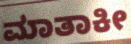
ಮಾತಾಕೀ